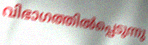
വിഭാഗത്തിൽപ്പെടുന്നു